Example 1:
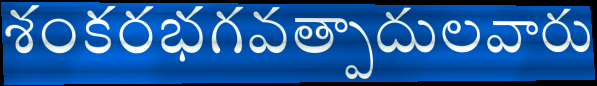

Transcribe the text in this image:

శంకరభగవత్పాదులవారు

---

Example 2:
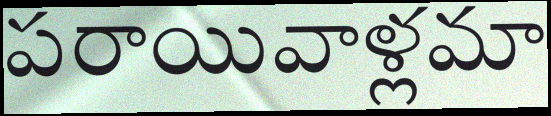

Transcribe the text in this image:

పరాయివాళ్లమా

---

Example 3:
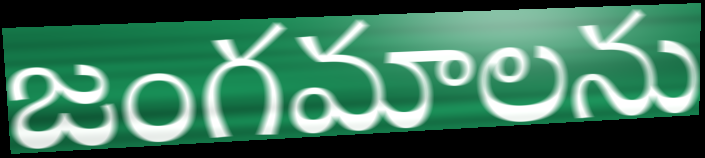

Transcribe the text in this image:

జంగమాలను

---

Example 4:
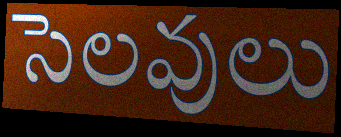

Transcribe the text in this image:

సెలవులు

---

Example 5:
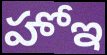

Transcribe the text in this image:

హోఇ